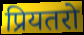
प्रियतरो